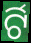
ର୍ଟି